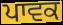
ਪਾਵਕ